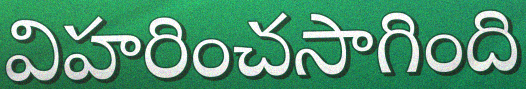
విహరించసాగింది